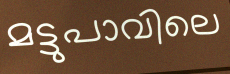
മട്ടുപാവിലെ